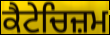
ਕੈਟੇਚਿਜ਼ਮ